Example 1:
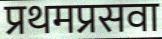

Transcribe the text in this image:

प्रथमप्रसवा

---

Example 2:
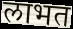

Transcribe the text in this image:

लाभत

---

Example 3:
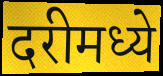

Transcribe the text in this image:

दरीमध्ये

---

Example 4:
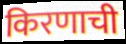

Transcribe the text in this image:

किरणाची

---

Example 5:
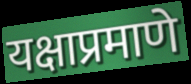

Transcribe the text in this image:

यक्षाप्रमाणे